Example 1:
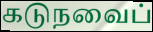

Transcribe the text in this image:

கடுநவைப்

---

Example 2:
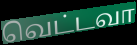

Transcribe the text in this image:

வெட்டவா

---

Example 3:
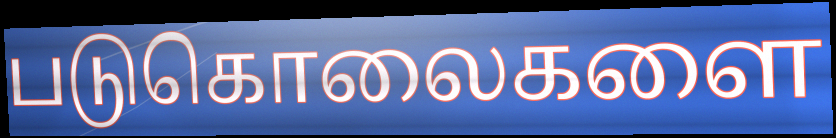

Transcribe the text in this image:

படுகொலைகளை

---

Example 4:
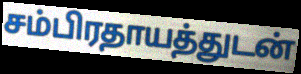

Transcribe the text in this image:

சம்பிரதாயத்துடன்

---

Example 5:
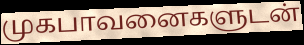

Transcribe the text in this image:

முகபாவனைகளுடன்